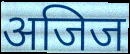
अजिज